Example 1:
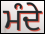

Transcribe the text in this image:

ਮੰਦੇ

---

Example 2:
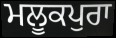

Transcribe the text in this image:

ਮਲੂਕਪੁਰਾ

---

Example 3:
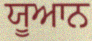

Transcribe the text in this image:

ਯੂਆਨ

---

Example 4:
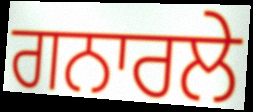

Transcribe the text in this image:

ਗਨਾਰਲੇ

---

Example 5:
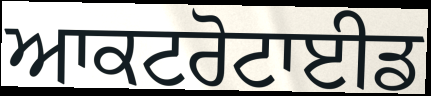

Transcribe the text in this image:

ਆਕਟਰੋਟਾਈਡ